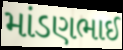
માંડણભાઈ